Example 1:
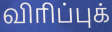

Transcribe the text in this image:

விரிப்புக்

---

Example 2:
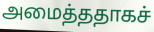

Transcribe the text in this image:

அமைத்ததாகச்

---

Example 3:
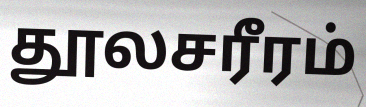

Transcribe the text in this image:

தூலசரீரம்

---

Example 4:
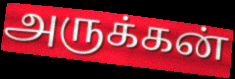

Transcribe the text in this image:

அருக்கன்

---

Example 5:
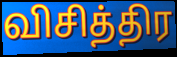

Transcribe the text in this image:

விசித்திர